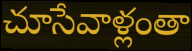
చూసేవాళ్లంతా